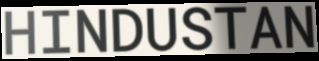
HINDUSTAN